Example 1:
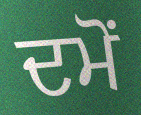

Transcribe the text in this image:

ਦਮੋਂ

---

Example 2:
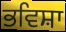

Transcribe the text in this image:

ਭਵਿਸ਼ਾ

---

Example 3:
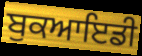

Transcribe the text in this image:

ਬੁਕਆਇਡੀ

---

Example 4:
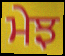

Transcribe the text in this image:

ਮੇਝ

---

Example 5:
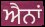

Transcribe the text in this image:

ਐਨਾਂ